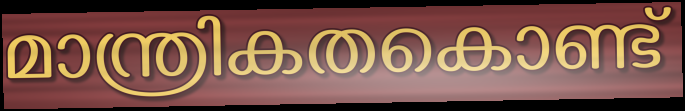
മാന്ത്രികതകൊണ്ട്